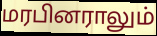
மரபினராலும்